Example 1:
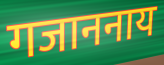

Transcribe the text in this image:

गजाननाय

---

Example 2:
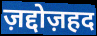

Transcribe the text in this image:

ज़द्दोज़हद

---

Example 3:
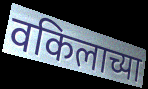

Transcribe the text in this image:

वकिलाच्या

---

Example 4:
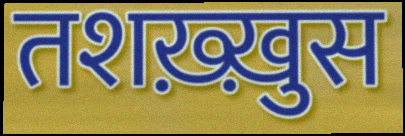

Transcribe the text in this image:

तशख़्ख़ुस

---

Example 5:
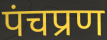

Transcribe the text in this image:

पंचप्रण